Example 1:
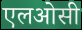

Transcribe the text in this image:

एलओसी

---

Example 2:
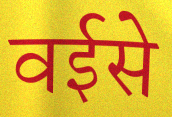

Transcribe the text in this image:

वईसे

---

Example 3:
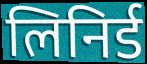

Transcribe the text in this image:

लिनिर्ड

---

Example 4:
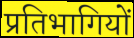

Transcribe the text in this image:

प्रतिभागियों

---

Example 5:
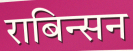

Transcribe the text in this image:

राबिन्सन